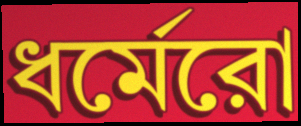
ধর্মেরো